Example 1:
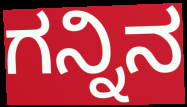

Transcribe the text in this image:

ಗನ್ನಿನ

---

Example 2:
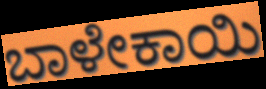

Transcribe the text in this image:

ಬಾಳೇಕಾಯಿ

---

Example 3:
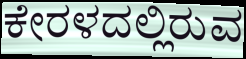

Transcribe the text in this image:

ಕೇರಳದಲ್ಲಿರುವ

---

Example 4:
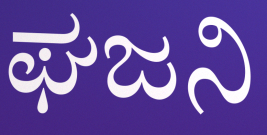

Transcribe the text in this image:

ಘಜನಿ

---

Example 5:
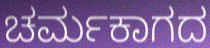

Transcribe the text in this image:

ಚರ್ಮಕಾಗದ